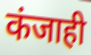
कंजाही